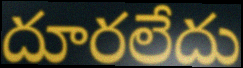
దూరలేదు